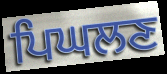
ਪਿਘਲਣ